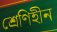
শ্রেণিহীন